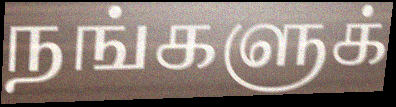
நங்களுக்